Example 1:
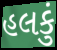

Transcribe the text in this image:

હલકું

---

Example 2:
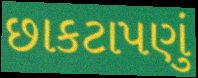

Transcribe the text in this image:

છાકટાપણું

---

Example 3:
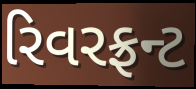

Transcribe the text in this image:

રિવરફ્રન્ટ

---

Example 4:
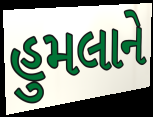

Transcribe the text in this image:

હુમલાને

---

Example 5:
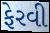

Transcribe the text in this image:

ફેરવી